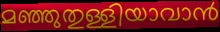
മഞ്ഞുതുള്ളിയാവാൻ